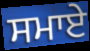
ਸਮਾਏ